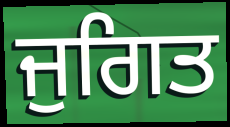
ਜੁਗਿਤ